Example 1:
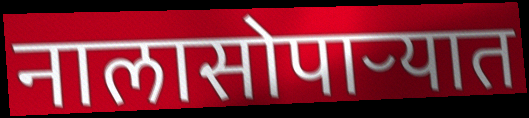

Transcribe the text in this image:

नालासोपाऱ्यात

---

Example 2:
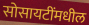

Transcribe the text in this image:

सोसायटींमधील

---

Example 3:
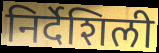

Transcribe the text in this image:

निर्देशिली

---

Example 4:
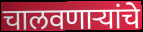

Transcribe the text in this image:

चालवणाऱ्यांचे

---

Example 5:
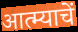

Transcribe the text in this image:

आत्म्याचें